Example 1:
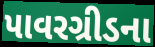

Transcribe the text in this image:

પાવરગ્રીડના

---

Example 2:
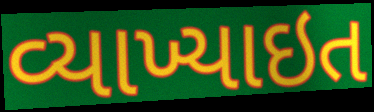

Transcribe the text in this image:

વ્યાખ્યાઇત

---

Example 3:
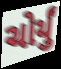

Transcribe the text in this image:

ચોર્યું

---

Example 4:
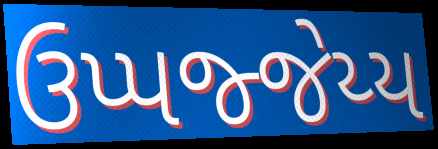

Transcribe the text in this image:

ઉપ્પજ્જેય્ય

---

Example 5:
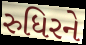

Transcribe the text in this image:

રુધિરને